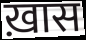
ख़ास